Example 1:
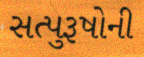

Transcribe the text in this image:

સત્પુરૂષોની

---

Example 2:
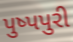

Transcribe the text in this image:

પુષ્પપુરી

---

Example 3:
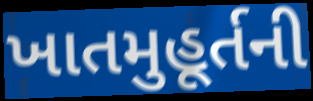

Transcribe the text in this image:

ખાતમુહૂર્તની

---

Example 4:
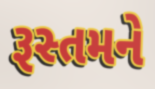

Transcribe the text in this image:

રૂસ્તમને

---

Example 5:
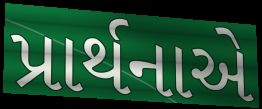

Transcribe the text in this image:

પ્રાર્થનાએ